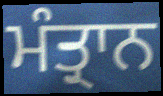
ਮੰਤ੍ਰਾਨ